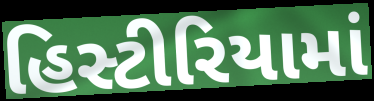
હિસ્ટીરિયામાં